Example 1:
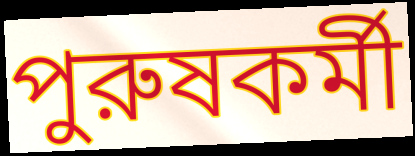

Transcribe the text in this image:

পুরুষকর্মী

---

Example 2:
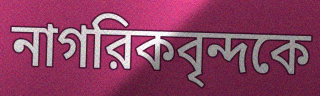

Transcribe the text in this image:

নাগরিকবৃন্দকে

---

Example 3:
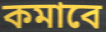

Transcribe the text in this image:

কমাবে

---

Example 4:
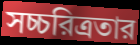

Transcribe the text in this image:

সচ্চরিত্রতার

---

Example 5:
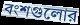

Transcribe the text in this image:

বংশগুলোর